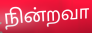
நின்றவா